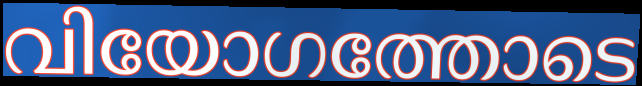
വിയോഗത്തോടെ